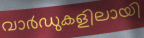
വാർഡുകളിലായി